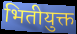
भितीयुक्त